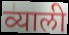
व्याली